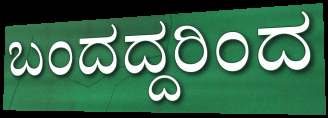
ಬಂದದ್ದರಿಂದ